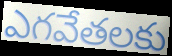
ఎగవేతలకు